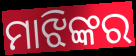
ମାଝିଙ୍କର